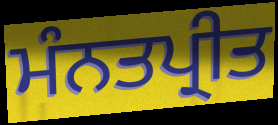
ਮੰਨਤਪ੍ਰੀਤ